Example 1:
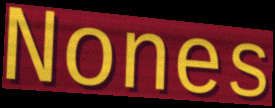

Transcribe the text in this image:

Nones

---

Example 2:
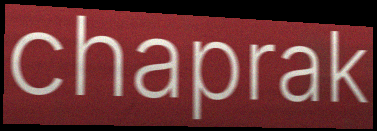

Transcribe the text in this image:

chaprak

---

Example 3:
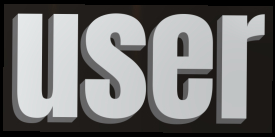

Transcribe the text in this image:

user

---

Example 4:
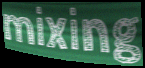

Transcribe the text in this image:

mixing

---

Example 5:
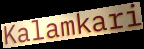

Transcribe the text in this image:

Kalamkari